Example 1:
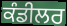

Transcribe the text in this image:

ਕੰਡੀਲਰ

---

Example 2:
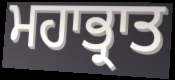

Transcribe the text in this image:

ਮਹਾਭ੍ਰਾਤ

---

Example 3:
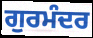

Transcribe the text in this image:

ਗੁਰਮੰਦਰ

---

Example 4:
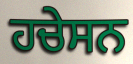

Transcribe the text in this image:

ਹਚੇਸਨ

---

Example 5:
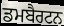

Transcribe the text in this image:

ਡਮਬੈਰਟਨ